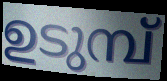
ഉടുമ്പ്